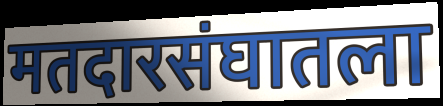
मतदारसंघातला